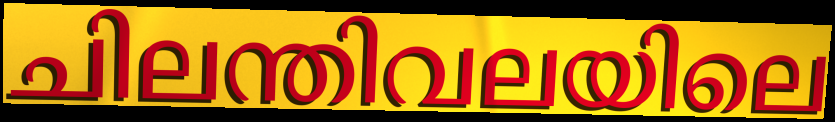
ചിലന്തിവലയിലെ